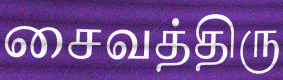
சைவத்திரு